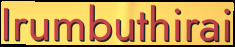
Irumbuthirai